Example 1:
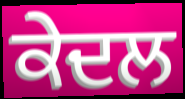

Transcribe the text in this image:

ਕੇਦਲ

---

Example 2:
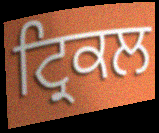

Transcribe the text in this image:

ਟ੍ਰਿਕਲ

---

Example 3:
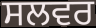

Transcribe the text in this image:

ਸਲਵਰ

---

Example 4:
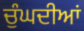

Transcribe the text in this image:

ਚੁੰਘਦੀਆਂ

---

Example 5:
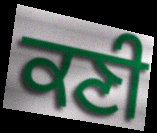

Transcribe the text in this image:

ਕਣੀ